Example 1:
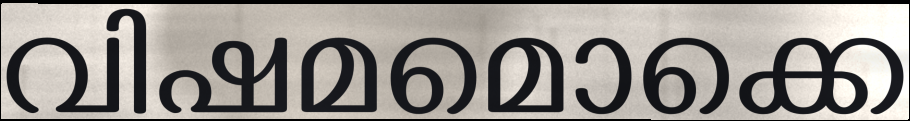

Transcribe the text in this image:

വിഷമമൊക്കെ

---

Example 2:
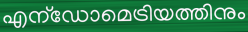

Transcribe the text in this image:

എന്ഡോമെട്രിയത്തിനും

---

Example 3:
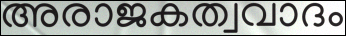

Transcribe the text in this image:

അരാജകത്വവാദം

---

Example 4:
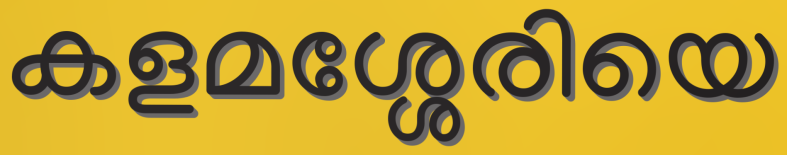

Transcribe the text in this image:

കളമശ്ശേരിയെ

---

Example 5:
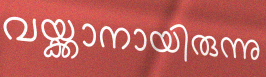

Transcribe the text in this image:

വയ്ക്കാനായിരുന്നു